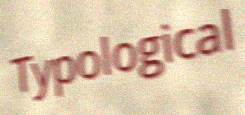
Typological